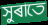
সুৰাতে